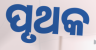
ପୃଥକ